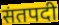
संतपदी